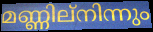
മണ്ണില്നിന്നും